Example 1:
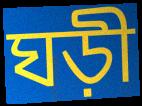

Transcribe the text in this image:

ঘড়ী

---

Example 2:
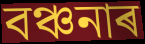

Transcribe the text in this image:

বঞ্চনাৰ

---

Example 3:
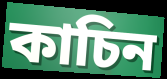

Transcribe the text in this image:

কাচিন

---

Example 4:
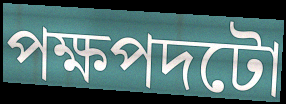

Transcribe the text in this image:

পক্ষপদটো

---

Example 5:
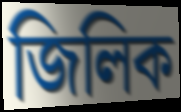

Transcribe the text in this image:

জিলিক